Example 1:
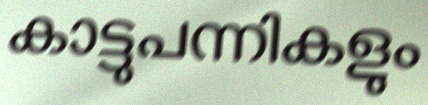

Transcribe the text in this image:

കാട്ടുപന്നികളും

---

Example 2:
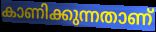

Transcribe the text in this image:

കാണിക്കുന്നതാണ്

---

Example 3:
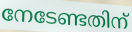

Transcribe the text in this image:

നേടേണ്ടതിന്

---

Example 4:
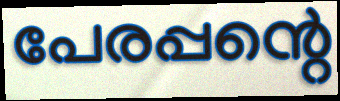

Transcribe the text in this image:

പേരപ്പന്റെ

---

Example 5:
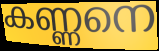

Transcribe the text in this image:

കണ്ണനെ